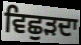
ਵਿਛੁੜਦਾ